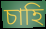
চাহি